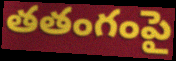
తతంగంపై